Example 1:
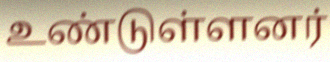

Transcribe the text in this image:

உண்டுள்ளனர்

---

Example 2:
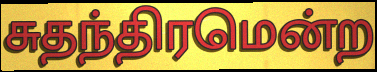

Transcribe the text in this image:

சுதந்திரமென்ற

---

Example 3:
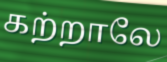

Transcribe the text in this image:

கற்றாலே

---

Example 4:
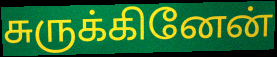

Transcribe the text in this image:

சுருக்கினேன்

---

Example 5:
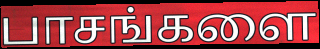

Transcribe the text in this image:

பாசங்களை